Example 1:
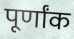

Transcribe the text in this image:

पूर्णांक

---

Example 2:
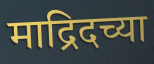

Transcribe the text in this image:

माद्रिदच्या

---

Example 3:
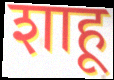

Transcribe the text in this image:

शाहू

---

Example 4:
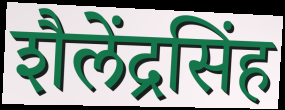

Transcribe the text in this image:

शैलेंद्रसिंह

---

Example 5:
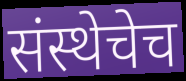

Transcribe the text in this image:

संस्थेचेच